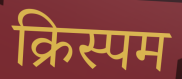
क्रिस्पम